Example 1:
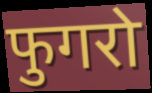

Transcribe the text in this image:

फुगरो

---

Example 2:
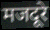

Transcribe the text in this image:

मजदूरे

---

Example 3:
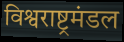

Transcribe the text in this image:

विश्वराष्ट्रमंडल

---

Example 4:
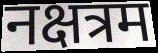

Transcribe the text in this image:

नक्षत्रम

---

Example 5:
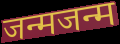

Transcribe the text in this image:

जन्मजन्म